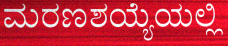
ಮರಣಶಯ್ಯೆಯಲ್ಲಿ